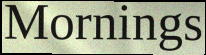
Mornings